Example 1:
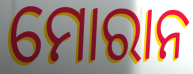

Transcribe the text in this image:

ମୋରାନ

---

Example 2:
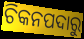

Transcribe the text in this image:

ଚିକନପଦାରୁ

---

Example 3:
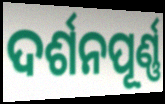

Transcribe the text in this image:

ଦର୍ଶନପୂର୍ଣ୍ଣ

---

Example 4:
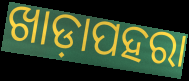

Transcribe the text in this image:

ଖାଡ଼ାପହରା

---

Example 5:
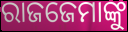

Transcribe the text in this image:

ରାଜଜେମାଙ୍କୁ